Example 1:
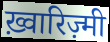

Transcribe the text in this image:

ख़्वारिज़्मी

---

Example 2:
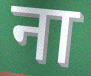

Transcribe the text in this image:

ना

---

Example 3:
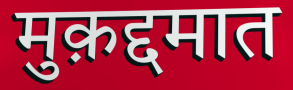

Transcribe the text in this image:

मुक़द्दमात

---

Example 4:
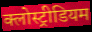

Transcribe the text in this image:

क्लोस्ट्रीडियम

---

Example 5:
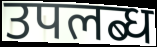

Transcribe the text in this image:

उपलब्ध